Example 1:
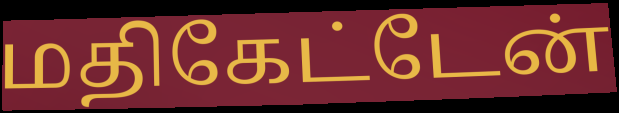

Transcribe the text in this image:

மதிகேட்டேன்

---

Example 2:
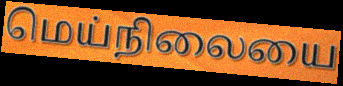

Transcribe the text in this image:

மெய்நிலையை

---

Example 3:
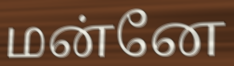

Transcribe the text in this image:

மன்னே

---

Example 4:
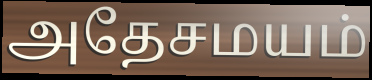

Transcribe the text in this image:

அதேசமயம்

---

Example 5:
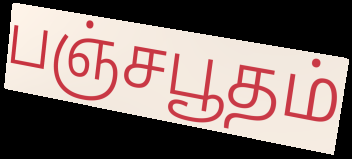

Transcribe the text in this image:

பஞ்சபூதம்